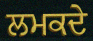
ਲਮਕਦੇ